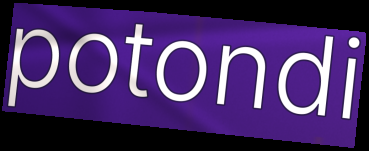
potondi